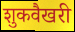
शुकवैखरी